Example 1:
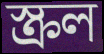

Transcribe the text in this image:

স্ক্রল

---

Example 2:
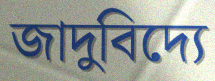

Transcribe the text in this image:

জাদুবিদ্যে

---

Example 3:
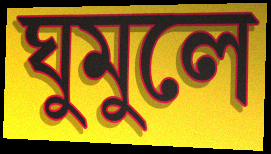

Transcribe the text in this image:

ঘুমুলে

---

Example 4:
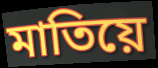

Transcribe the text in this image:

মাতিয়ে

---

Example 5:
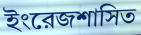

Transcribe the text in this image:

ইংরেজশাসিত